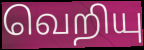
வெறியு